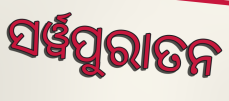
ସର୍ୱପୁରାତନ